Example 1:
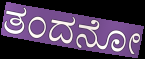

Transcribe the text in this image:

ತಂದನೋ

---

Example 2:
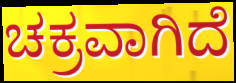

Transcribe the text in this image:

ಚಕ್ರವಾಗಿದೆ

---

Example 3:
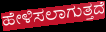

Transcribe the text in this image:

ಹೇಳಿಸಲಾಗುತ್ತದೆ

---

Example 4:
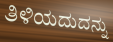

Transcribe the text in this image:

ತಿಳಿಯದುದನ್ನು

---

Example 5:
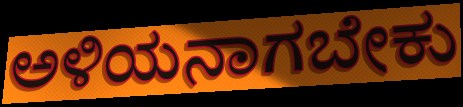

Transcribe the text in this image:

ಅಳಿಯನಾಗಬೇಕು